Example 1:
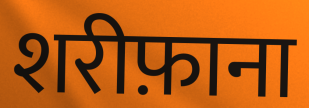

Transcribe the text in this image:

शरीफ़ाना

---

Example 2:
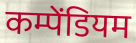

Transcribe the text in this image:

कम्पेंडियम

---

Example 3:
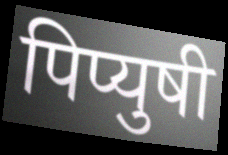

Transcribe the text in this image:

पिप्युषी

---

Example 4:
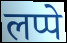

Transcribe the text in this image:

लप्पे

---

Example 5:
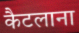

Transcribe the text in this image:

कैटलाना